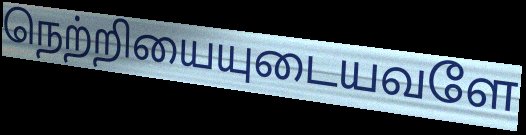
நெற்றியையுடையவளே